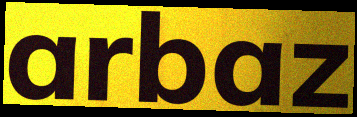
arbaz